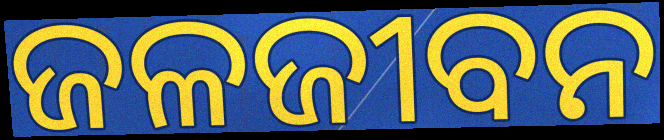
ଜଳଜୀବନ